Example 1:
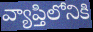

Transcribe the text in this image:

వ్యాప్తిలోనికి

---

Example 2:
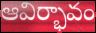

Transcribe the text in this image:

ఆవిర్భావం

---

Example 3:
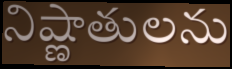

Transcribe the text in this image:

నిష్ణాతులను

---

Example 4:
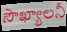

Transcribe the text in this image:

సౌఖ్యాలనీ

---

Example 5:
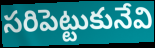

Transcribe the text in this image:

సరిపెట్టుకునేవి